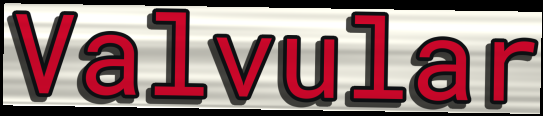
Valvular